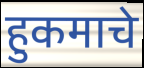
हुकमाचे